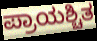
ಪ್ರಾಯಶ್ಚಿತ